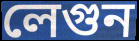
লেগুন